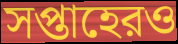
সপ্তাহেরও